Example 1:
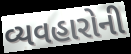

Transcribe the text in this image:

વ્યવહારોની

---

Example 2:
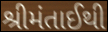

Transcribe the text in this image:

શ્રીમંતાઈથી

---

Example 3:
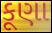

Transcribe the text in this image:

કૂણા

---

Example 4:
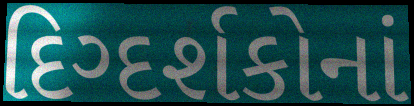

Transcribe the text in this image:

દિગ્દર્શકોનાં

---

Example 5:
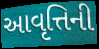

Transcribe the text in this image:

આવૃત્તિની